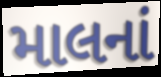
માલનાં